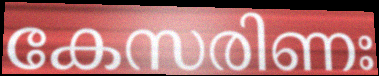
കേസരിണഃ